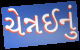
ચેન્નઈનું